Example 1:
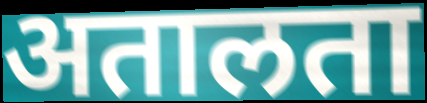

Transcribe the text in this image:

अतालता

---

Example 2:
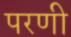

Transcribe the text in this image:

परणी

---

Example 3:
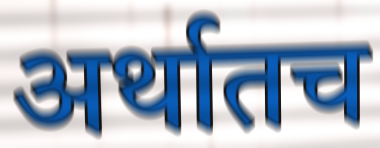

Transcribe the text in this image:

अर्थातच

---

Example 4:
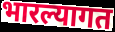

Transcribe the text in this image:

भारल्यागत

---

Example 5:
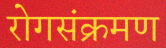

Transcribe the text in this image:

रोगसंक्रमण